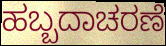
ಹಬ್ಬದಾಚರಣೆ